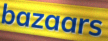
bazaars